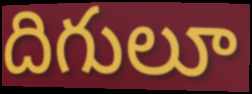
దిగులూ